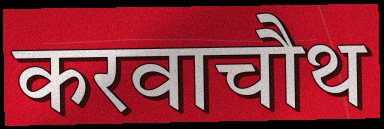
करवाचौथ